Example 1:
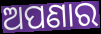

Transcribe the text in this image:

ଅପଣାର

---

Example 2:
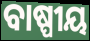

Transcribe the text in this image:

ବାଷ୍ପୀୟ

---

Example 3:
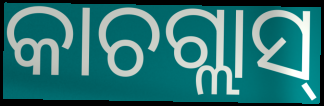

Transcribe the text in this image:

କାଚଗ୍ଲାସ୍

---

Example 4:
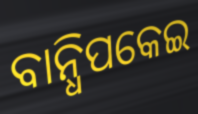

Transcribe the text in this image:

ବାନ୍ଧିପକେଇ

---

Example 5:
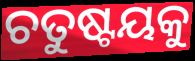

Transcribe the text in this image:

ଚତୁଷ୍ଟୟକୁ